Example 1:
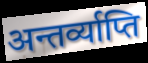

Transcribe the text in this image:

अन्तर्व्याप्ति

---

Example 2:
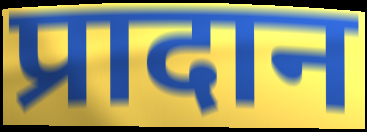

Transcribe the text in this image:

प्रादान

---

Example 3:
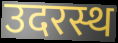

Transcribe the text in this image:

उदरस्थ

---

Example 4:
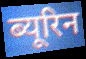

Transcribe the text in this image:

ब्यूरिन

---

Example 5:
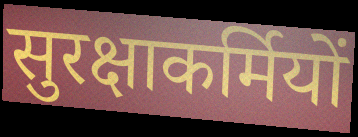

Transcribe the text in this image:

सुरक्षाकर्मियों